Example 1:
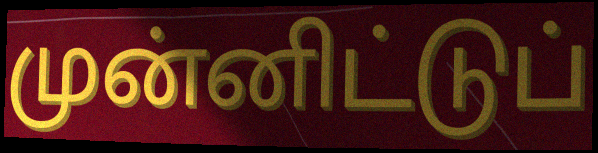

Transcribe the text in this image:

முன்னிட்டுப்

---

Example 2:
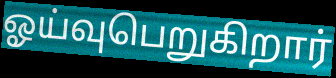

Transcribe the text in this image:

ஓய்வுபெறுகிறார்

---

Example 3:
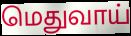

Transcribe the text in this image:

மெதுவாய்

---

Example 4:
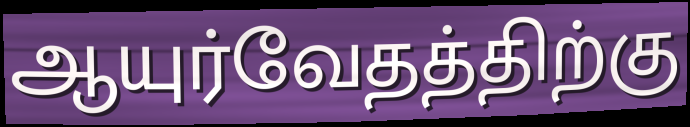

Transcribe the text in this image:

ஆயுர்வேதத்திற்கு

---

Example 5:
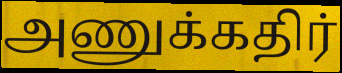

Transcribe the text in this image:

அணுக்கதிர்